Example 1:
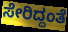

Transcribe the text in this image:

ಸೇರಿದ್ದಂತೆ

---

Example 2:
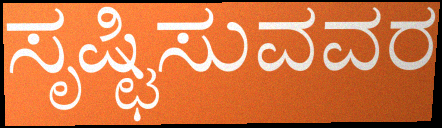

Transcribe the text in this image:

ಸೃಷ್ಟಿಸುವವರ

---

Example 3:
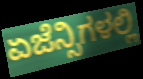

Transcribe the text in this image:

ಏಜೆನ್ಸಿಗಳಲ್ಲಿ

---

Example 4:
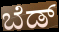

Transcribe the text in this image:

ಬೆಡ್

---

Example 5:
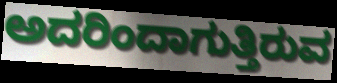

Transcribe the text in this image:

ಅದರಿಂದಾಗುತ್ತಿರುವ